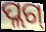
ପ୍ଲଗ୍